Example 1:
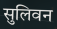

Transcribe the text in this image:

सुलिवन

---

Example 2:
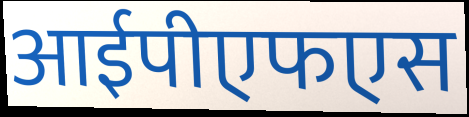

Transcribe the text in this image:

आईपीएफएस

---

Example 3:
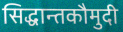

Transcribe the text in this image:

सिद्धान्तकौमुदी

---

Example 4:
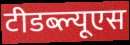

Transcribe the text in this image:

टीडब्ल्यूएस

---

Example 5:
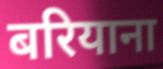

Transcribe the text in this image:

बरियाना